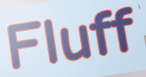
Fluff